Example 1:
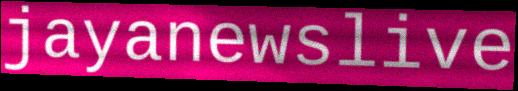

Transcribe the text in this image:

jayanewslive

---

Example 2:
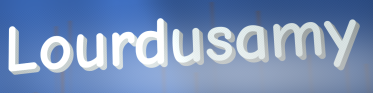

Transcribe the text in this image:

Lourdusamy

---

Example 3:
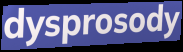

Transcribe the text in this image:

dysprosody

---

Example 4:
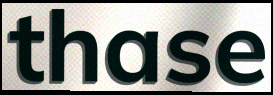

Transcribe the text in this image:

thase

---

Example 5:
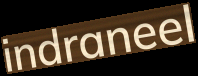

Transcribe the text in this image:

indraneel